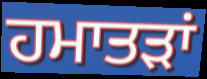
ਹਮਾਤੜਾਂ